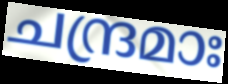
ചന്ദ്രമാഃ